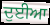
ਦੁਈਆ